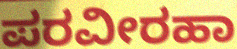
ಪರವೀರಹಾ